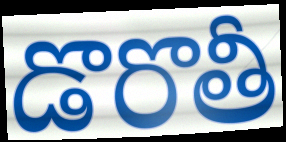
డొరొతీ